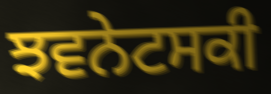
ਝਵਨੇਟਸਕੀ